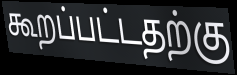
கூறப்பட்டதற்கு